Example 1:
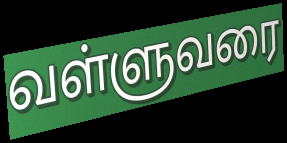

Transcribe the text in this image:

வள்ளுவரை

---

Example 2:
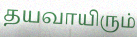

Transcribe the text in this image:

தயவாயிரும்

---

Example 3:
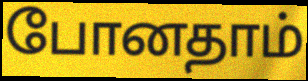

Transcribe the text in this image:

போனதாம்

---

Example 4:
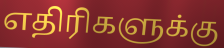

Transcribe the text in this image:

எதிரிகளுக்கு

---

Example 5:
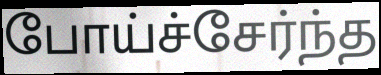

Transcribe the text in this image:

போய்ச்சேர்ந்த